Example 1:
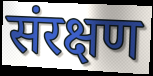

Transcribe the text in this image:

संरक्षण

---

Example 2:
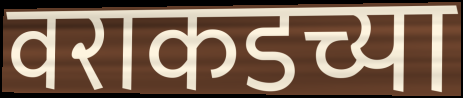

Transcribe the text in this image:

वराकडच्या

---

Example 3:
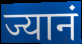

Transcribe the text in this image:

ज्यानं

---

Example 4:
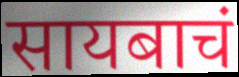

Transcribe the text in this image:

सायबाचं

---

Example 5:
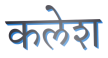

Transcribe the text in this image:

कलेश